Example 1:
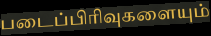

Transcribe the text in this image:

படைப்பிரிவுகளையும்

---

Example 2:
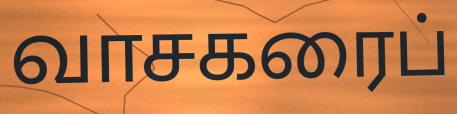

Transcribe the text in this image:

வாசகரைப்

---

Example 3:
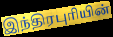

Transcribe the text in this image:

இந்திரபுரியின்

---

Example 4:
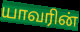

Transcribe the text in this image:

யாவரின்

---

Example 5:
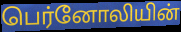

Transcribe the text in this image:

பெர்னோலியின்